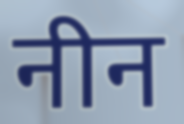
नीन